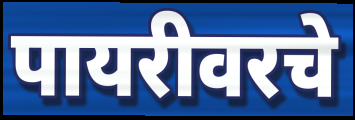
पायरीवरचे